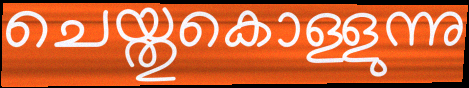
ചെയ്തുകൊള്ളുന്നു